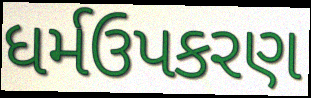
ધર્મઉપકરણ